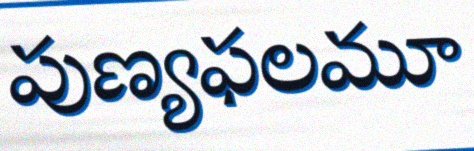
పుణ్యఫలమూ